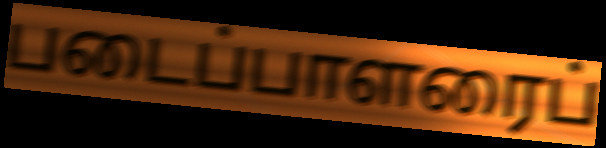
படைப்பாளரைப்